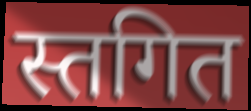
स्तगित